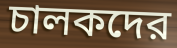
চালকদের